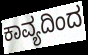
ಕಾವ್ಯದಿಂದ